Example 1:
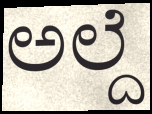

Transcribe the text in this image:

ಅಲ್ದೆ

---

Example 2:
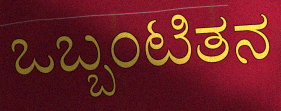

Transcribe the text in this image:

ಒಬ್ಬಂಟಿತನ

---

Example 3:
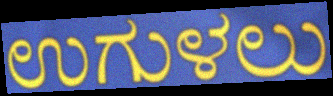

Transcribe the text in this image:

ಉಗುಳಲು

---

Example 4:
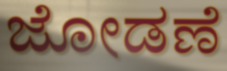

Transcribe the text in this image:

ಜೋಡಣೆ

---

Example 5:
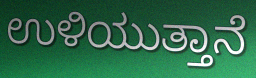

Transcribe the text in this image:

ಉಳಿಯುತ್ತಾನೆ